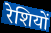
रेशियों